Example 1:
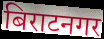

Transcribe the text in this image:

बिराटनगर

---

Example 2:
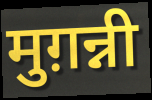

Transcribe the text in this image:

मुग़न्नी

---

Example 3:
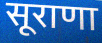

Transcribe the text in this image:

सूराणा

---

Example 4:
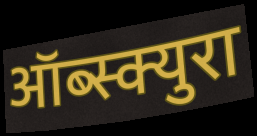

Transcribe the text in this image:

ऑब्स्क्युरा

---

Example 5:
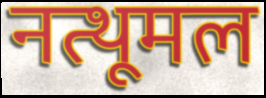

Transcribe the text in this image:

नत्थूमल